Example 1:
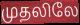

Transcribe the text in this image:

முதலிலே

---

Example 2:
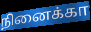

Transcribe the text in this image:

நினைக்கா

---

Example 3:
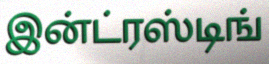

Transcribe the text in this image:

இன்ட்ரஸ்டிங்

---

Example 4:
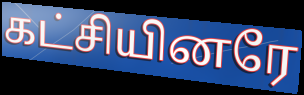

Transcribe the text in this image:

கட்சியினரே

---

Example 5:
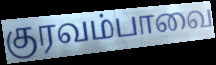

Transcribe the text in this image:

குரவம்பாவை